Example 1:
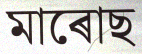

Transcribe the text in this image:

মাৰোছ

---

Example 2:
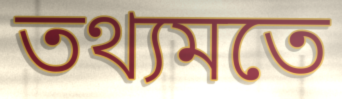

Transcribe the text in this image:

তথ্যমতে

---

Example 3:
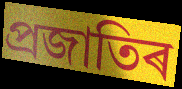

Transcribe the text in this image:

প্ৰজাতিৰ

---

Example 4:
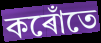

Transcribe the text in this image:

কৰোঁতে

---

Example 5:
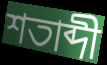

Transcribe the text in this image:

শতাব্দী